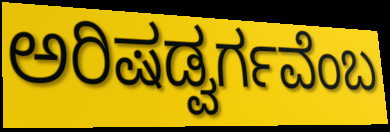
ಅರಿಷಡ್ವರ್ಗವೆಂಬ